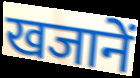
खजानें